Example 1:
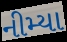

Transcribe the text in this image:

નીમ્યા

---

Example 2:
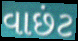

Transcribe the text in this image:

વાછંટ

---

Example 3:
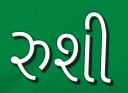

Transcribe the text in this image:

રુશી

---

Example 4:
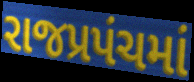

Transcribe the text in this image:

રાજપ્રપંચમાં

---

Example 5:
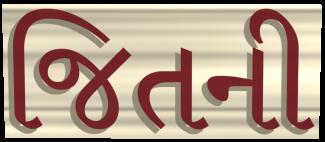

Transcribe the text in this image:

જિતની